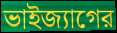
ভাইজ্যাগের